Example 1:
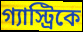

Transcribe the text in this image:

গ্যাস্ট্রিকে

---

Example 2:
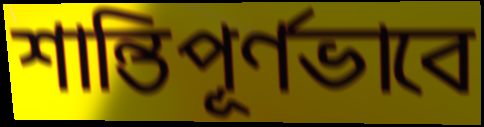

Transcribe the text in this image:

শান্তিপূর্ণভাবে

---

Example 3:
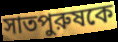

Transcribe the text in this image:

সাতপুরুষকে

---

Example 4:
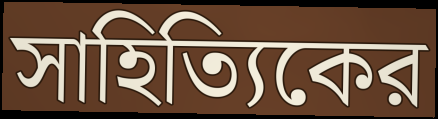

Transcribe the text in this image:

সাহিত্যিকের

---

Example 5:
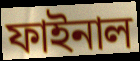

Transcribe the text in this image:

ফাইনাল